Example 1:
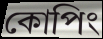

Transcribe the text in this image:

কোপিং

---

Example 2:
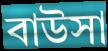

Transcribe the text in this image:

বাউসা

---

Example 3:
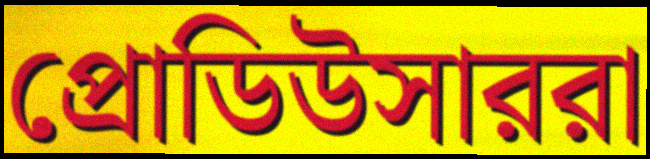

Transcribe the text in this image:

প্রোডিউসাররা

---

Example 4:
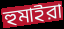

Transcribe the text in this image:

হুমাইরা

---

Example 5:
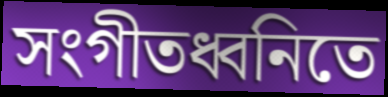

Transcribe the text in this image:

সংগীতধ্বনিতে